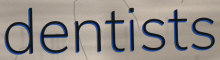
dentists